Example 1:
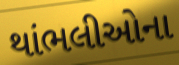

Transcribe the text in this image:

થાંભલીઓના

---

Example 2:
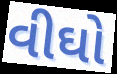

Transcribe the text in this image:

વીઘો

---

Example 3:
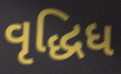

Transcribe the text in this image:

વૃદ્ધિધ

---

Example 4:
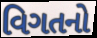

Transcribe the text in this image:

વિગતનો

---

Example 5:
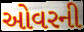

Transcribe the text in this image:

ઓવરની